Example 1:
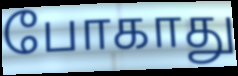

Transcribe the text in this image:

போகாது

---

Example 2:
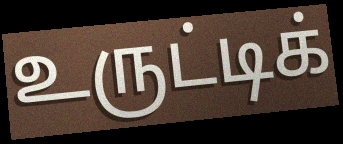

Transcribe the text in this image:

உருட்டிக்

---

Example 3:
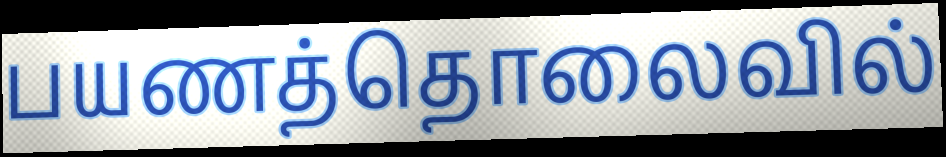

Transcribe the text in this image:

பயணத்தொலைவில்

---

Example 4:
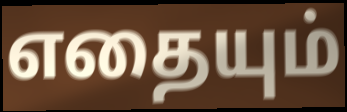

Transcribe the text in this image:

எதையும்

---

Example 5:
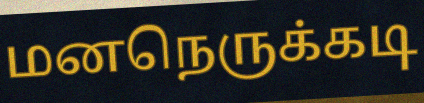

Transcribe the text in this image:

மனநெருக்கடி